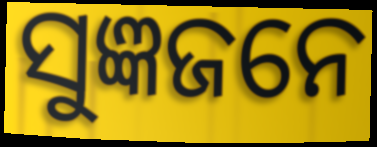
ସୁଜ୍ଞଜନେ